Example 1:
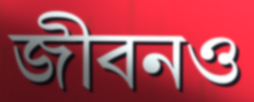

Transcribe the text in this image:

জীবনও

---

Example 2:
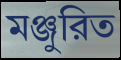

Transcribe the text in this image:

মঞ্জুরিত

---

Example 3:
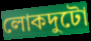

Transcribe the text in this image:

লোকদুটো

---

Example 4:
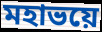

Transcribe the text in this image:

মহাভয়ে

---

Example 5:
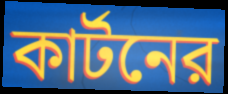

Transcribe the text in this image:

কার্টনের